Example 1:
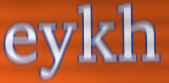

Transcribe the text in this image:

eykh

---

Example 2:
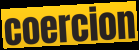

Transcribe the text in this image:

coercion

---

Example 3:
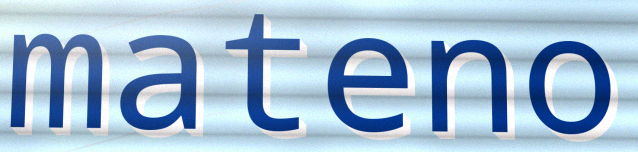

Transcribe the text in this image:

mateno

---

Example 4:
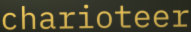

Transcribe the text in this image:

charioteer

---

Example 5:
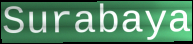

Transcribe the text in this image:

Surabaya